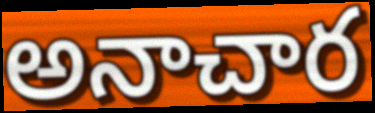
అనాచార